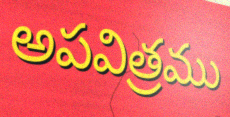
అపవిత్రము